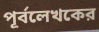
পূর্বলেখকের